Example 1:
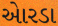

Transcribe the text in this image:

એારડા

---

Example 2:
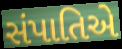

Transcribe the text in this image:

સંપાતિએ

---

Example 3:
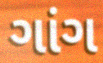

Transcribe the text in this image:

ગાંગ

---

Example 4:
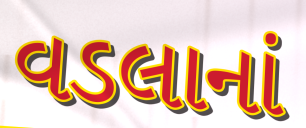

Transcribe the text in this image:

વડલાનાં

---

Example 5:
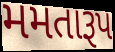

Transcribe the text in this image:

મમતારૂપ